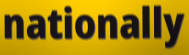
nationally